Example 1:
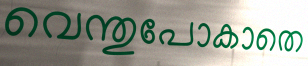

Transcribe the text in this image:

വെന്തുപോകാതെ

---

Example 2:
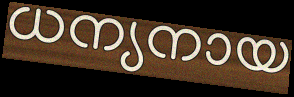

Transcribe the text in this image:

ധന്യനായ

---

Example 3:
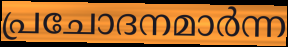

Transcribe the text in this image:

പ്രചോദനമാർന്ന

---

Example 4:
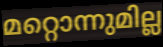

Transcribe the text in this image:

മറ്റൊന്നുമില്ല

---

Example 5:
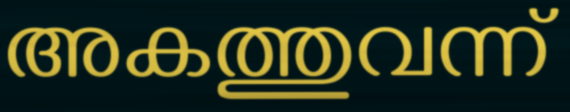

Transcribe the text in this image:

അകത്തുവന്ന്